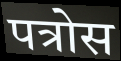
पत्रोस